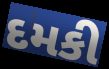
દમકી